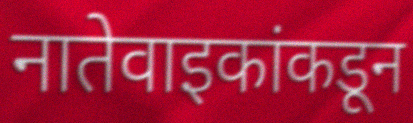
नातेवाइकांकडून